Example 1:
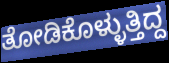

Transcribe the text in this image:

ತೋಡಿಕೊಳ್ಳುತ್ತಿದ್ದ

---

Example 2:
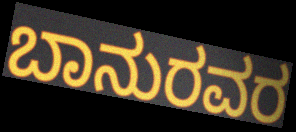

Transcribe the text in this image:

ಬಾನುರವರ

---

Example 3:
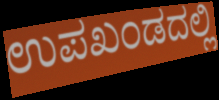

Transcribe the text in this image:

ಉಪಖಂಡದಲ್ಲಿ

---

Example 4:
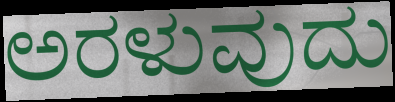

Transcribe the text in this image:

ಅರಳುವುದು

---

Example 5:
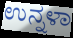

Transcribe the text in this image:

ಉನ್ನಳಾ